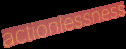
actionlessness